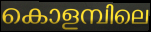
കൊളമ്പിലെ